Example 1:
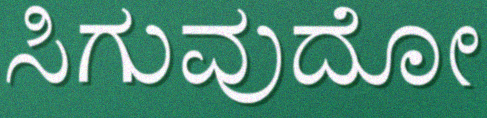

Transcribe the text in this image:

ಸಿಗುವುದೋ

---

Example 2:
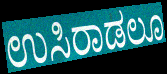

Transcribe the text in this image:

ಉಸಿರಾಡಲೂ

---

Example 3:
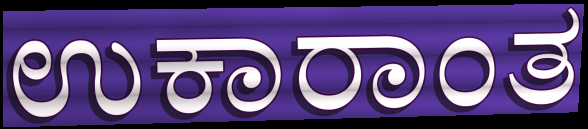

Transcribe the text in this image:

ಉಕಾರಾಂತ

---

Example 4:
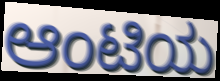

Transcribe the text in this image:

ಆಂಟಿಯ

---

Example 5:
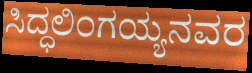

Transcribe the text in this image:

ಸಿದ್ಧಲಿಂಗಯ್ಯನವರ